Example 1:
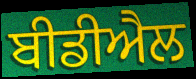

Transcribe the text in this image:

ਬੀਡੀਐਲ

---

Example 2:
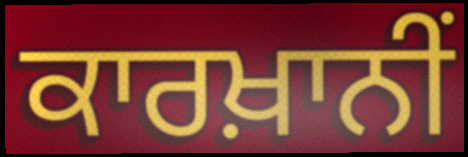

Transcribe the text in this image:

ਕਾਰਖ਼ਾਨੀਂ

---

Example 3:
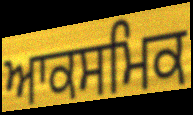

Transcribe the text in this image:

ਆਕਸਮਿਕ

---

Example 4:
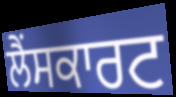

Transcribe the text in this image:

ਲੈਂਸਕਾਰਟ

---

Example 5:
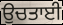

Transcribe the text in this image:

ਉਚਤਾਈ